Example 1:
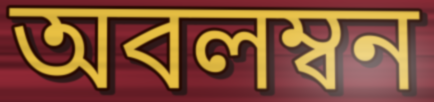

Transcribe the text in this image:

অবলম্বন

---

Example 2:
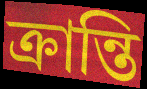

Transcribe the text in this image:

ক্ৰান্তি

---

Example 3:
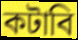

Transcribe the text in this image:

কটাবি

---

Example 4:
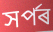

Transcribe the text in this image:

সৰ্পৰ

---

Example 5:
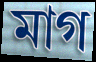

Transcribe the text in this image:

মাগ